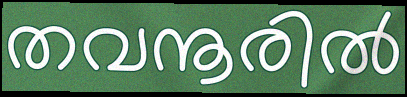
തവനൂരിൽ